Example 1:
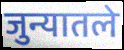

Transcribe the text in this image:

जुन्यातले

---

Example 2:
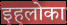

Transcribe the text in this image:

इहलोका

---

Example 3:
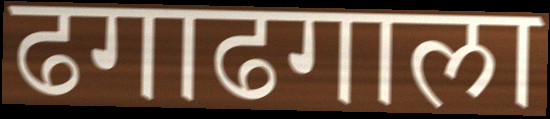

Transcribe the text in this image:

ढगाढगाला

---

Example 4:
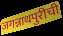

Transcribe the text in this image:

जगन्नाथपुरीची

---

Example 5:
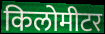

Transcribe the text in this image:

किलोमीटर